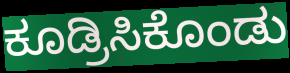
ಕೂಡ್ರಿಸಿಕೊಂಡು